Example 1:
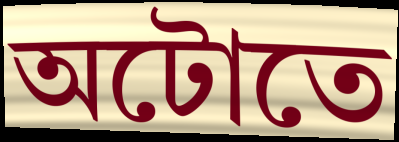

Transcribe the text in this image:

অটোতে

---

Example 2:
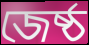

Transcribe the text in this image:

জেষ্ঠ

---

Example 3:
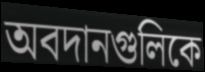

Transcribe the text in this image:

অবদানগুলিকে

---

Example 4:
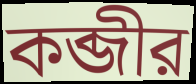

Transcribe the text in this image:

কব্জীর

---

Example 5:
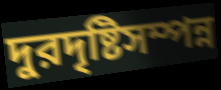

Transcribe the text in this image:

দুরদৃষ্টিসম্পন্ন